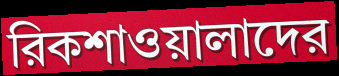
রিকশাওয়ালাদের